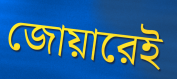
জোয়ারেই